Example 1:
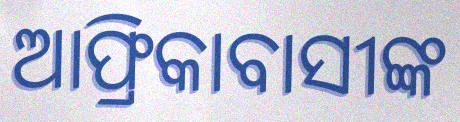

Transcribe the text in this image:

ଆଫ୍ରିକାବାସୀଙ୍କ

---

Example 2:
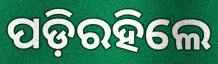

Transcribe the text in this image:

ପଡ଼ିରହିଲେ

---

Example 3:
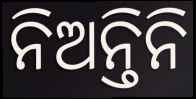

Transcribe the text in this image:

ନିଅନ୍ତିନି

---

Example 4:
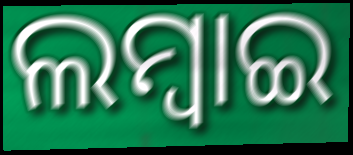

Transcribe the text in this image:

ଲମ୍ବାଇ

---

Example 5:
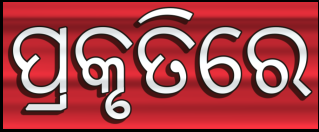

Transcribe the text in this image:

ପ୍ରକୃତିରେ